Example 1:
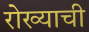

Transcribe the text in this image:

रोख्याची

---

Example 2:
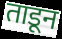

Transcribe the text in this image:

ताडून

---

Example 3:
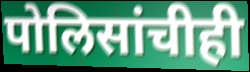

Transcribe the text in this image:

पोलिसांचीही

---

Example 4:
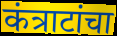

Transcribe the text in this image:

कंत्राटांचा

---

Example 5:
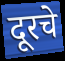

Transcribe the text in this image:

दूरचे